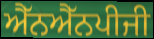
ਐੱਨਐੱਨਪੀਜੀ